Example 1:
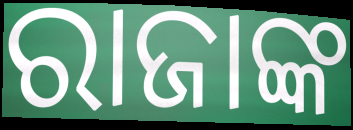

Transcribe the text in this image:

ରାଜାଙ୍କ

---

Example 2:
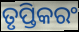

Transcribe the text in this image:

ତୃପ୍ତିକରଂ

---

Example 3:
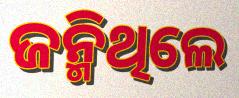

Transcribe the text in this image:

ଜନ୍ମିଥିଲେ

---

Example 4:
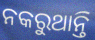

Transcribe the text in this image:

ନକରୁଥାନ୍ତି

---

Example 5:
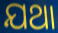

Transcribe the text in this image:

ଯଥା